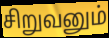
சிறுவனும்